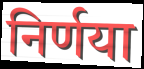
निर्णया